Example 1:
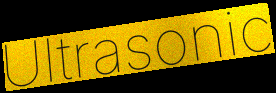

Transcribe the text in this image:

Ultrasonic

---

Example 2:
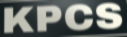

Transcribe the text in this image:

KPCS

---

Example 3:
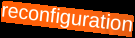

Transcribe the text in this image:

reconfiguration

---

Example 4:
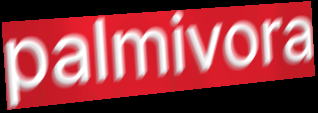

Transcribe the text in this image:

palmivora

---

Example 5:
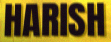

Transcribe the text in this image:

HARISH